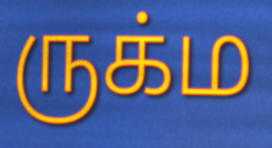
ருக்ம